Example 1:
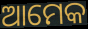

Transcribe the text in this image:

ଆମେକ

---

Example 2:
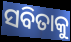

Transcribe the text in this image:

ସବିତାକୁ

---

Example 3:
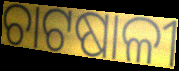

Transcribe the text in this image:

ଚାଟଷାଳୀ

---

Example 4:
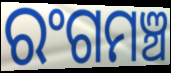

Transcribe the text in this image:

ରଂଗମଞ୍ଚ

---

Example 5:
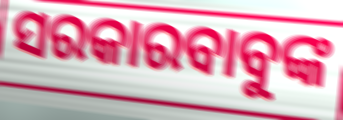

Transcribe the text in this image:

ସରକାରବାବୁଙ୍କ